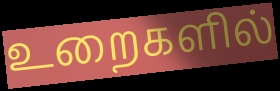
உறைகளில்